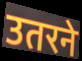
उतरने